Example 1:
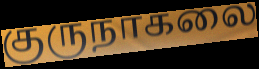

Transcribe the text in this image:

குருநாகலை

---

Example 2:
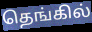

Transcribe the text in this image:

தெங்கில்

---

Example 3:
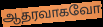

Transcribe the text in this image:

ஆதரவாகவோ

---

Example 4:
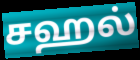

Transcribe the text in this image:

சஹல்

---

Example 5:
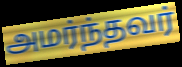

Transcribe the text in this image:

அமர்ந்தவர்